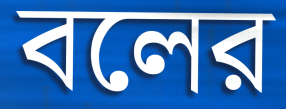
বলের